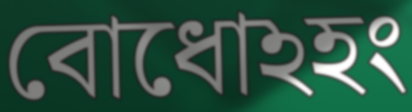
বোধোঽহং